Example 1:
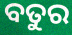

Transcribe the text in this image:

ବତୁର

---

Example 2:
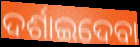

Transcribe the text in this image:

ଦର୍ଶାଇଦେବା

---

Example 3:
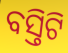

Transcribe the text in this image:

ବସ୍ତିଟି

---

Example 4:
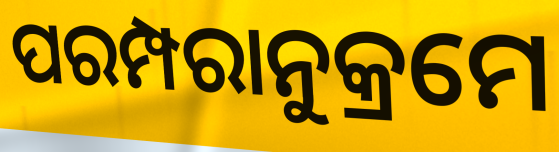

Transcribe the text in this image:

ପରମ୍ପରାନୁକ୍ରମେ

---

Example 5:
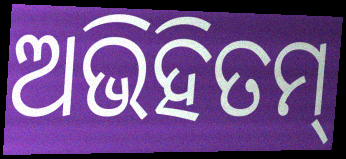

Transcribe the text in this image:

ଅଭିହିତମ୍